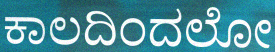
ಕಾಲದಿಂದಲೋ